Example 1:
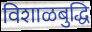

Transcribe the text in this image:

विशाळबुद्धि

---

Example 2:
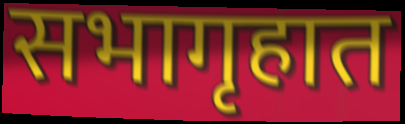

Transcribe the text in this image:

सभागृहात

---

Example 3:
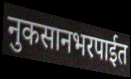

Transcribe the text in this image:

नुकसानभरपाईत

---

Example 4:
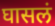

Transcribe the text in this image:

घासलं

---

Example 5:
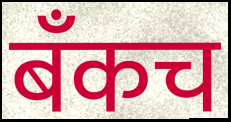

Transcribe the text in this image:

बँकच